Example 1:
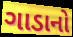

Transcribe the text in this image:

ગાડાનો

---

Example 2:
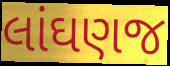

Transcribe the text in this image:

લાંઘણજ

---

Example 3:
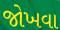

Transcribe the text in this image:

જોખવા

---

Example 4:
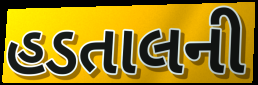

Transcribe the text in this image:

હડતાલની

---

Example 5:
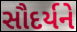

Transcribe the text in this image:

સૌદર્યને